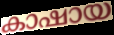
കാഷായ